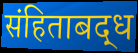
संहिताबद्ध